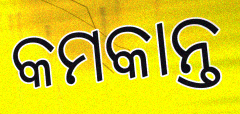
କମକାନ୍ତ